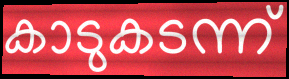
കാടുകടന്ന്